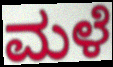
ಮಳೆ